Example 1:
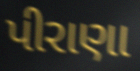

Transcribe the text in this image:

પીરાણા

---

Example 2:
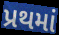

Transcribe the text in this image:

પ્રથમાં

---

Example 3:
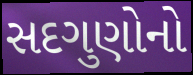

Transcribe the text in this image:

સદગુણોનો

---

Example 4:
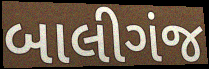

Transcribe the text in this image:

બાલીગંજ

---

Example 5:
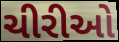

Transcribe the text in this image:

ચીરીઓ